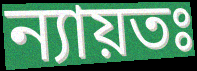
ন্যায়তঃ